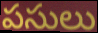
పసులు